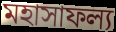
মহাসাফল্য